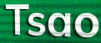
Tsao